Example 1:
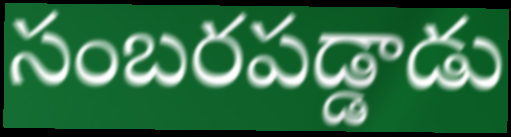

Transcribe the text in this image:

సంబరపడ్డాడు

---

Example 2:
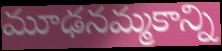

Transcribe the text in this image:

మూఢనమ్మకాన్ని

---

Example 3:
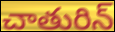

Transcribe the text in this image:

చాతురిన్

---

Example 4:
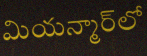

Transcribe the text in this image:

మియన్మార్‌లో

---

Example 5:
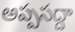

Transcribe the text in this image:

అప్పసద్దా